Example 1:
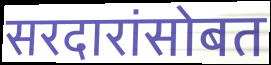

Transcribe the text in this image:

सरदारांसोबत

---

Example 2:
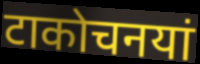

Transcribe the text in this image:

टाकोचनयां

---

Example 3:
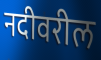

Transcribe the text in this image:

नदीवरील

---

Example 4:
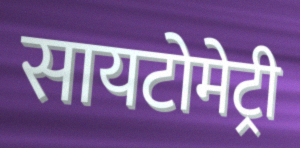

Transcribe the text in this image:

सायटोमेट्री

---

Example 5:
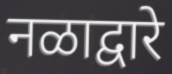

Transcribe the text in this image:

नळाद्वारे